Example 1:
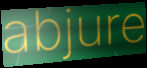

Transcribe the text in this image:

abjure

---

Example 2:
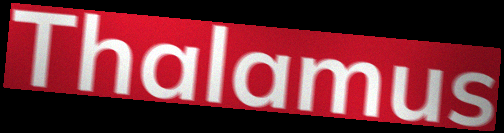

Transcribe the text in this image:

Thalamus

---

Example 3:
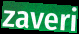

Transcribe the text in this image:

zaveri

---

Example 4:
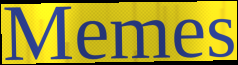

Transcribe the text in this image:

Memes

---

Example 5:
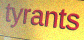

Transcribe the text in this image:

tyrants